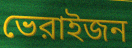
ভেরাইজন